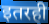
इतरही